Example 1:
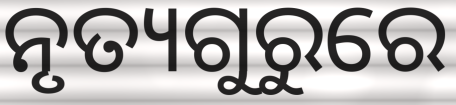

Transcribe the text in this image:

ନୃତ୍ୟଗୁରୁରେ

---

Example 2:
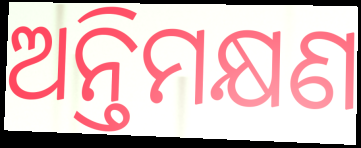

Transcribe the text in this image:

ଅନ୍ତିମକ୍ଷଣ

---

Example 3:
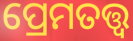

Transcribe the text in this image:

ପ୍ରେମତତ୍ତ୍ୱ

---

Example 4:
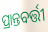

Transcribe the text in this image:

ପ୍ରାନ୍ତବର୍ତ୍ତୀ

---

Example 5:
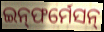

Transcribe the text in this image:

ଇନ୍‍ଫର୍ମେସନ୍